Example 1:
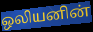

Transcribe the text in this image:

ஒலியனின்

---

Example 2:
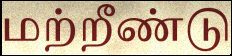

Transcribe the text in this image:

மற்றீண்டு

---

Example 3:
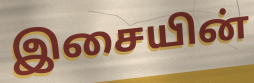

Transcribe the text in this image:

இசையின்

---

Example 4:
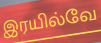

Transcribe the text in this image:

இரயில்வே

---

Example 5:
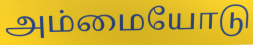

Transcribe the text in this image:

அம்மையோடு